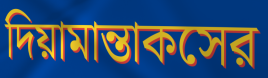
দিয়ামান্তাকসের